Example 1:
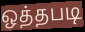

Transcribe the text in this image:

ஒத்தபடி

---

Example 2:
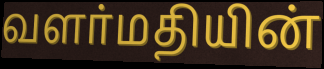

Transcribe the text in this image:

வளர்மதியின்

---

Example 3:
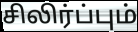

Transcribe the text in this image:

சிலிர்ப்பும்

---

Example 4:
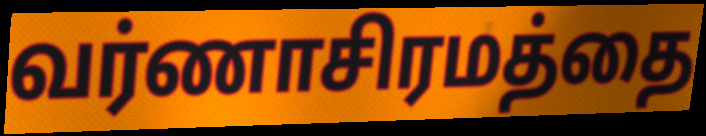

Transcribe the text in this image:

வர்ணாசிரமத்தை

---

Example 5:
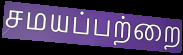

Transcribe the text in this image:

சமயப்பற்றை